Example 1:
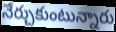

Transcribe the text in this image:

నేర్చుకుంటున్నారు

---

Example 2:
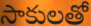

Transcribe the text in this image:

సాకులతో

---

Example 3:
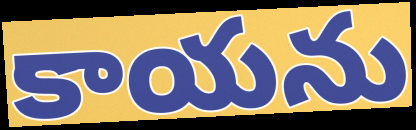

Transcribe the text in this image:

కాయను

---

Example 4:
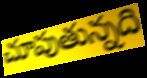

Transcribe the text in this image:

చూపుతున్నది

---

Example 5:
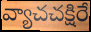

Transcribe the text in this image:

వ్యాచచక్షిరే